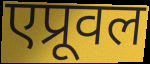
एप्रूवल